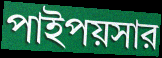
পাইপয়সার